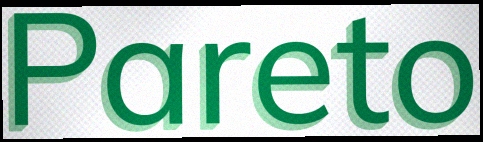
Pareto